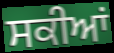
ਸਕੀਆਂ